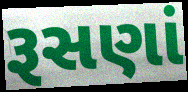
રૂસણાં